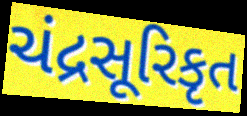
ચંદ્રસૂરિકૃત